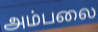
அம்பலை